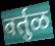
वर्तुळ